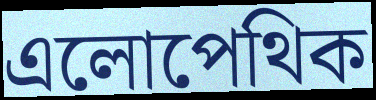
এলোপেথিক